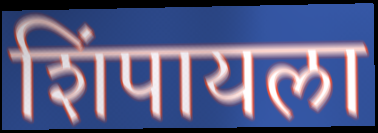
शिंपायला